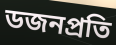
ডজনপ্রতি